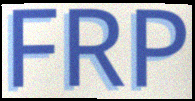
FRP